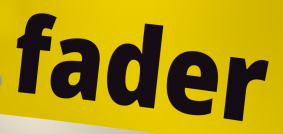
fader